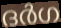
ദർഗ